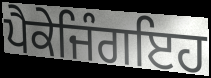
ਪੈਕੇਜਿੰਗਇਹ